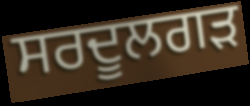
ਸਰਦੂਲਗੜ